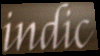
indic